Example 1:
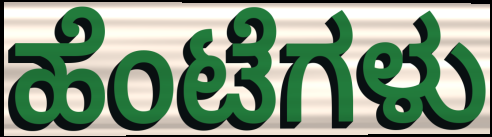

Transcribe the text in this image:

ಹೆಂಟೆಗಳು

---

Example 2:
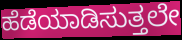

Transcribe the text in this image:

ಹೆಡೆಯಾಡಿಸುತ್ತಲೇ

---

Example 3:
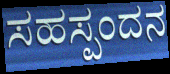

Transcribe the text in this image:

ಸಹಸ್ಪಂದನ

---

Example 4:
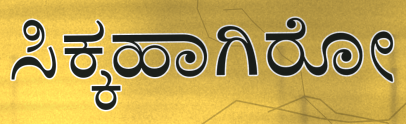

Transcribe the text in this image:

ಸಿಕ್ಕಹಾಗಿರೋ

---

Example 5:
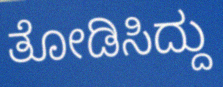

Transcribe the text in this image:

ತೋಡಿಸಿದ್ದು